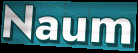
Naum